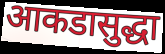
आकडासुद्धा